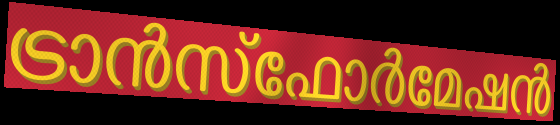
ട്രാൻസ്ഫോർമേഷൻ